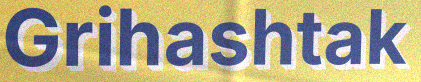
Grihashtak